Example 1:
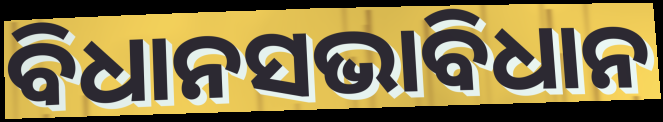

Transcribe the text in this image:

ବିଧାନସଭାବିଧାନ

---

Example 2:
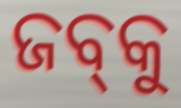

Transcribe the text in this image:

ଜବ୍‍କୁ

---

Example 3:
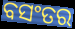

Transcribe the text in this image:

ବସଂତର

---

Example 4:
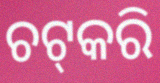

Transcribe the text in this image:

ଚଟ୍‌କରି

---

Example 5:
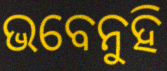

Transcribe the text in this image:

ଭବେନୁହି